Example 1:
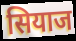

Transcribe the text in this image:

सियाज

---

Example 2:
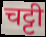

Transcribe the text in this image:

चट्टी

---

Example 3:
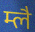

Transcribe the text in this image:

म्लै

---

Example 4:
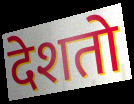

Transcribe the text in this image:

देशतो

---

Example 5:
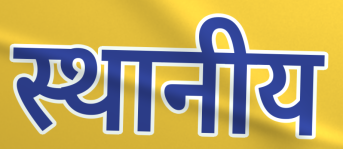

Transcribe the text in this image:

स्थानीय